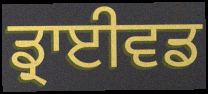
ਡ੍ਰਾਈਵਡ